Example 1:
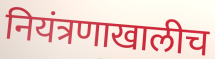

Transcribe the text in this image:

नियंत्रणाखालीच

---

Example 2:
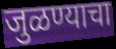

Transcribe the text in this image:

जुळण्याचा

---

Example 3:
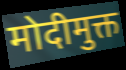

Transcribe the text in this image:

मोदीमुक्त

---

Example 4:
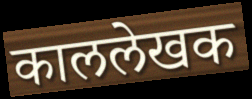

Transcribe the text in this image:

काललेखक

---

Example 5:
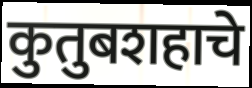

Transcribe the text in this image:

कुतुबशहाचे